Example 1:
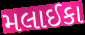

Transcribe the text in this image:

મલાઈકા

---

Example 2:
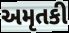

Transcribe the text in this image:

અમૃતકી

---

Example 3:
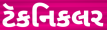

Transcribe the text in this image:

ટૅકનિકલર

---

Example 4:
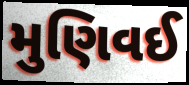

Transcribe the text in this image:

મુણિવઈ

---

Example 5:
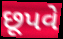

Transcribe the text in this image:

છૂપવે